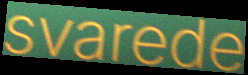
svarede